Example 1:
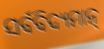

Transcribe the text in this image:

ସର୍ବବିଦ୍ୟମାନ୍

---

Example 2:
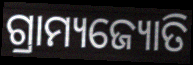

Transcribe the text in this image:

ଗ୍ରାମ୍ୟଜ୍ୟୋତି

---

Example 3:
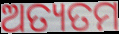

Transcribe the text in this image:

ଅତ୍ୟତମ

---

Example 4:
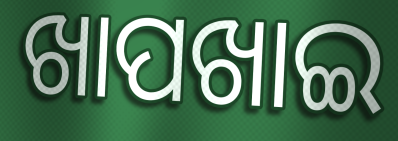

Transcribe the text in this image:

ଖାପଖାଇ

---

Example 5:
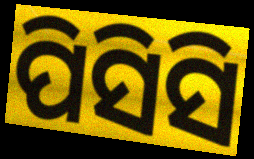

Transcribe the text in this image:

ପିସିସି